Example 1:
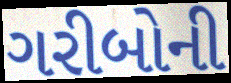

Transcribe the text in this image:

ગરીબોની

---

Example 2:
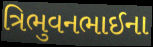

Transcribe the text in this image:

ત્રિભુવનભાઈના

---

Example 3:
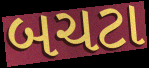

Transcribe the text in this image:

બચટા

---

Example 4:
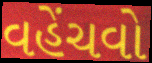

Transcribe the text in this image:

વહેંચવો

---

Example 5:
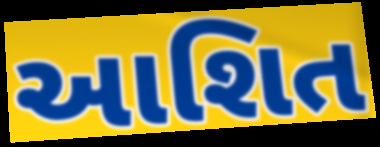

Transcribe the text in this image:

આશિત